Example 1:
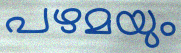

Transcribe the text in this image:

പഴമയും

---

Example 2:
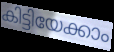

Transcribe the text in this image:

കിട്ടിയേക്കാം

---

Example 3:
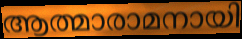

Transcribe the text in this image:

ആത്മാരാമനായി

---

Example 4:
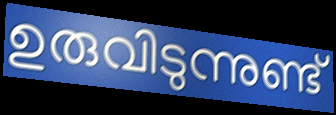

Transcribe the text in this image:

ഉരുവിടുന്നുണ്ട്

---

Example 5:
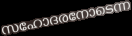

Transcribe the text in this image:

സഹോദരനോടെന്ന